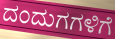
ದಂದುಗಗಳಿಗೆ